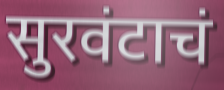
सुरवंटाचं